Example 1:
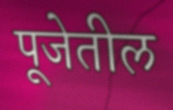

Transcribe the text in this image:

पूजेतील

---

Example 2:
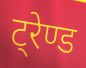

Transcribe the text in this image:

ट्रेण्ड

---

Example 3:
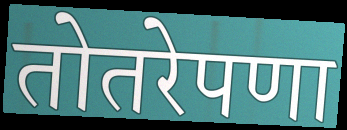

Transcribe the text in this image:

तोतरेपणा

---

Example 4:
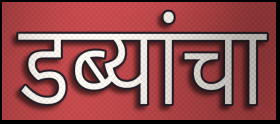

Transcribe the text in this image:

डब्यांचा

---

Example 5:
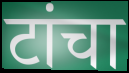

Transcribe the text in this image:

टांचा